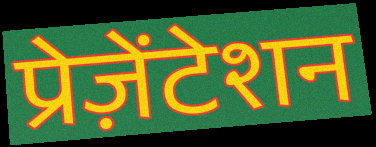
प्रेज़ेंटेशन